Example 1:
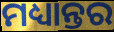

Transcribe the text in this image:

ମଧ୍ୟାନ୍ତର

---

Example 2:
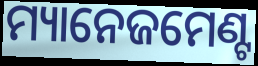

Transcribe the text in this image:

ମ୍ୟାନେଜମେଣ୍ଟ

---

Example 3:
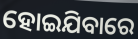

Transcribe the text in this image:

ହୋଇଯିବାରେ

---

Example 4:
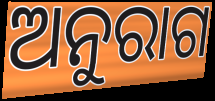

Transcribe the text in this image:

ଅନୁରାଗ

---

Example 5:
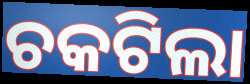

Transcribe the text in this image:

ଚକଟିଲା